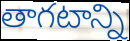
తాగటాన్ని